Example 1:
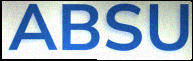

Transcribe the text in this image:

ABSU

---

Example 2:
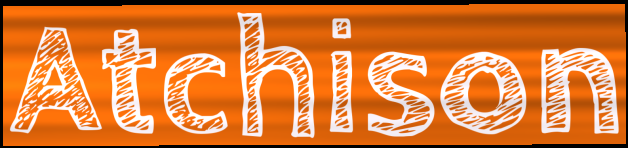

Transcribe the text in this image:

Atchison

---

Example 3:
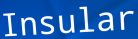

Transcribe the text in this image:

Insular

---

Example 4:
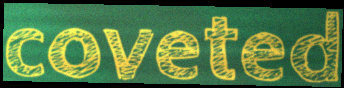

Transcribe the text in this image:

coveted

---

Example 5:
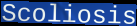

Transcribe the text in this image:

Scoliosis